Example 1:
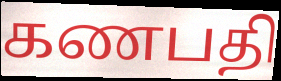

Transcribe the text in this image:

கணபதி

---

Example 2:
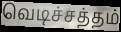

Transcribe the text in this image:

வெடிச்சத்தம்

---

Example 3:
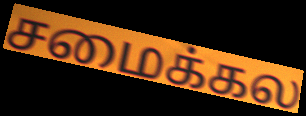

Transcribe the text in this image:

சமைக்கல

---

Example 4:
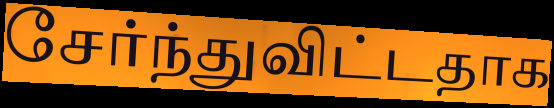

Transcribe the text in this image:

சேர்ந்துவிட்டதாக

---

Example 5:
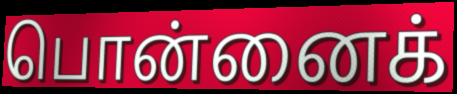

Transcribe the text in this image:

பொன்னைக்